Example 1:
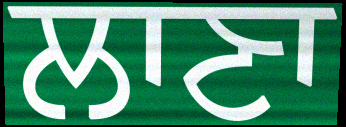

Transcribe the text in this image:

ਲਾਣਾ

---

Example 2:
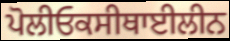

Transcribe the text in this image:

ਪੋਲੀਓਕਸੀਥਾਈਲੀਨ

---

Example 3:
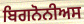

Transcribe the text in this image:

ਬਿਗਨੋਨੀਅਸ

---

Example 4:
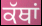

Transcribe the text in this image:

ਕੱਥਾਂ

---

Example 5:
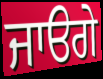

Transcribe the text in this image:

ਜਾੳਗੇ